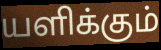
யளிக்கும்